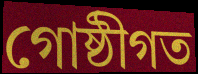
গোষ্ঠীগত